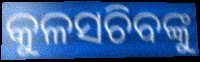
କୁଳସଚିବଙ୍କୁ